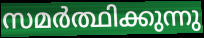
സമർത്ഥിക്കുന്നു